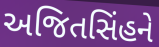
અજિતસિંહને